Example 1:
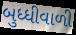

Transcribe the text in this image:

બુધ્ધીવાળી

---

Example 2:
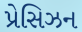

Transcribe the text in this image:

પ્રેસિઝન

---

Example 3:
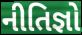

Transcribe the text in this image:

નીતિજ્ઞો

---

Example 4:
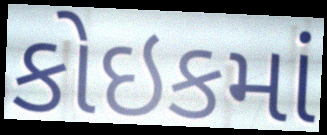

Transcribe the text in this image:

કોઇકમાં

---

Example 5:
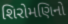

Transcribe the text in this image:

શિરોમણિનો